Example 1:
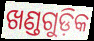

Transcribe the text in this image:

ଖଣ୍ଡଗୁଡ଼ିକ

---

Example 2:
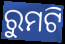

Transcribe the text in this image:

ରୁମଟି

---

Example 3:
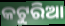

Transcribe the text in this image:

କଟୁରିଆ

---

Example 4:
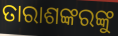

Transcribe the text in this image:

ତାରାଶଙ୍କରଙ୍କୁ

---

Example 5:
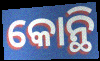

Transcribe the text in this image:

କୋନ୍ଥି